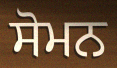
ਸੋਮਨ